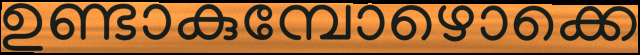
ഉണ്ടാകുമ്പോഴൊക്കെ